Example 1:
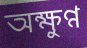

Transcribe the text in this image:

অক্ষুণ্ণ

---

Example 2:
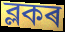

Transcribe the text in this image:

ব্লকৰ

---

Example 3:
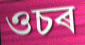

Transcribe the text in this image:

ওচৰ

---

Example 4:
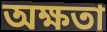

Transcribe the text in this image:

অক্ষতা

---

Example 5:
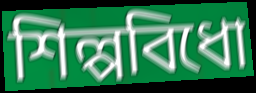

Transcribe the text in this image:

শিল্পবিধো